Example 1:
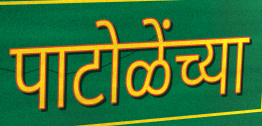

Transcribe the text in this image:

पाटोळेंच्या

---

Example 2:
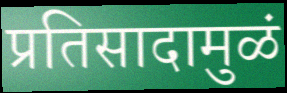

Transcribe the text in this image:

प्रतिसादामुळं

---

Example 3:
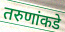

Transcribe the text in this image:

तरुणांकडे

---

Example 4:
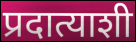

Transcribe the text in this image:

प्रदात्याशी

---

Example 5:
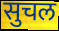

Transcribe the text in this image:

सुचल